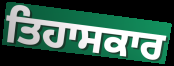
ਤਿਹਾਸਕਾਰ